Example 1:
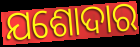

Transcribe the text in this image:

ଯଶୋଦାର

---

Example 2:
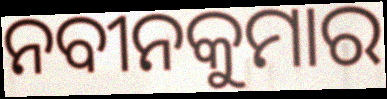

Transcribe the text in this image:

ନବୀନକୁମାର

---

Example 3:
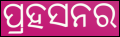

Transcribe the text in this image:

ପ୍ରହସନର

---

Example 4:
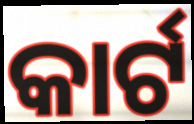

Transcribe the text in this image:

କାର୍ଟ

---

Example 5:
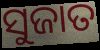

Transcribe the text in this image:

ସୁଜାତ